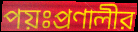
পয়ঃপ্রণালীর